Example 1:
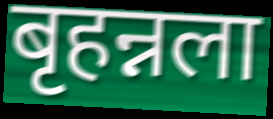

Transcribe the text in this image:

बृहन्नला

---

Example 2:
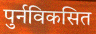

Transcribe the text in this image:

पुर्नविकसित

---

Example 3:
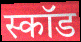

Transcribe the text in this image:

स्कॉड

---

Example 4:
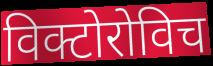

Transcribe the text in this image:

विक्टोरोविच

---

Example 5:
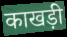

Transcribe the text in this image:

काखड़ी